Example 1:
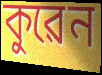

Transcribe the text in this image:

কুৱেন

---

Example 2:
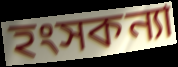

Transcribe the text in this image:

হংসকন্যা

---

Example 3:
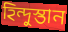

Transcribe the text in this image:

হিন্দুস্তান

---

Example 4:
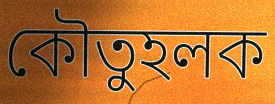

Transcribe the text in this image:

কৌতুহলক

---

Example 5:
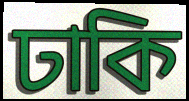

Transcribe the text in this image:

ঢাকি